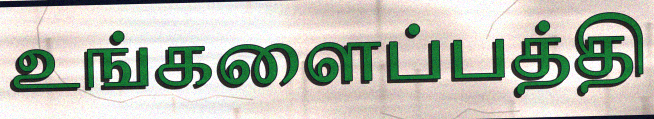
உங்களைப்பத்தி